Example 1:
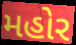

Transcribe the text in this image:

મહોર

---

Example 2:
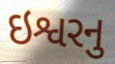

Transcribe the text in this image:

ઇશ્વરનુ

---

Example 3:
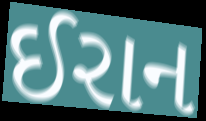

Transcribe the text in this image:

ઈરાન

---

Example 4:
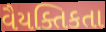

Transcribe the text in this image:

વૈયક્તિકતા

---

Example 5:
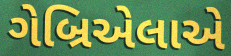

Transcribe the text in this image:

ગેબ્રિએલાએ